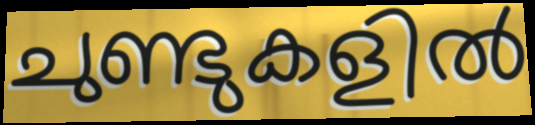
ചുണ്ടുകളിൽ